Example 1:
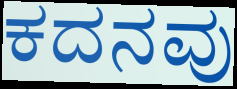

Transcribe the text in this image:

ಕದನವು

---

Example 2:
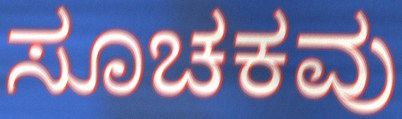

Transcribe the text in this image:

ಸೂಚಕವು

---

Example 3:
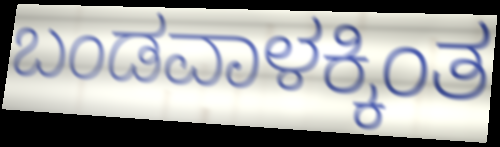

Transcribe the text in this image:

ಬಂಡವಾಳಕ್ಕಿಂತ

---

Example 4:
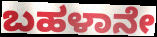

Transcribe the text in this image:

ಬಹಳಾನೇ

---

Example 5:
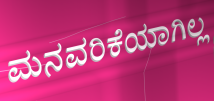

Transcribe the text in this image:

ಮನವರಿಕೆಯಾಗಿಲ್ಲ